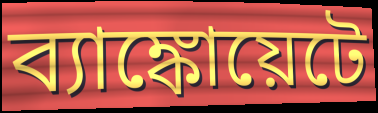
ব্যাঙ্কোয়েটে